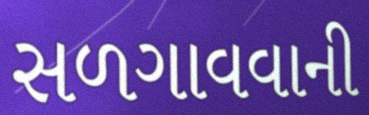
સળગાવવાની